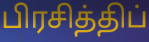
பிரசித்திப்